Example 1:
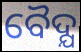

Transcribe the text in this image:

ବୈଦ୍ଯ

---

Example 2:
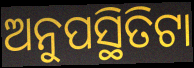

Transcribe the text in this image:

ଅନୁପସ୍ଥିତିଟା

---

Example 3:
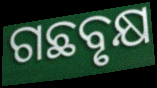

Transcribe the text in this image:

ଗଛବୃକ୍ଷ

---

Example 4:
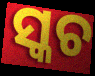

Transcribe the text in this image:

ସ୍କଚ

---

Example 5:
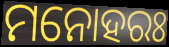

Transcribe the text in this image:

ମନୋହରଃ